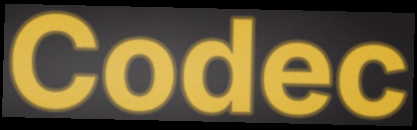
Codec